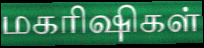
மகரிஷிகள்